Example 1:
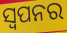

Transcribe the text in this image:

ସ୍ୱପନର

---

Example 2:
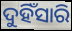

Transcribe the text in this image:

ଦୁହିଁସାରି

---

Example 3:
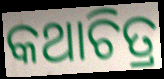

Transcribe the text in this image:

କଥାଚିତ୍ର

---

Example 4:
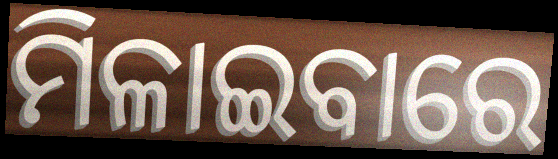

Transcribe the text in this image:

ମିଳାଇବାରେ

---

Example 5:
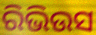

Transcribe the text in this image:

ରିଭିଉସ